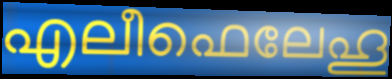
എലീഫെലേഹൂ